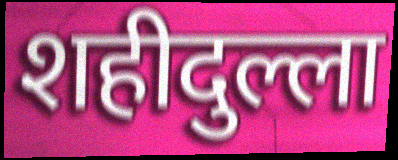
शहीदुल्ला